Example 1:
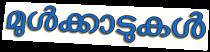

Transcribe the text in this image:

മുൾക്കാടുകൾ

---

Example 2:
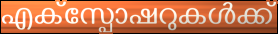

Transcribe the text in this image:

എക്സ്പോഷറുകൾക്ക്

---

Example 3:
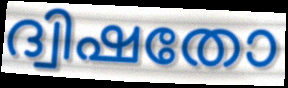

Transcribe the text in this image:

ദ്വിഷതോ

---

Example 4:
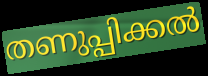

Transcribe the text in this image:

തണുപ്പിക്കൽ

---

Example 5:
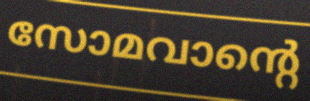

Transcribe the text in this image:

സോമവാന്റെ